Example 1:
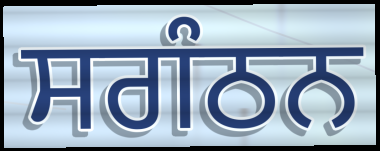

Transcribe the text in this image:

ਸਗੰਠਨ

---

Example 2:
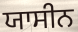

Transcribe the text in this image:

ਯਾਸੀਨ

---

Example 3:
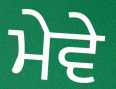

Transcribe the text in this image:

ਮੇਵੇ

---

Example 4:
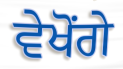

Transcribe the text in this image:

ਵੇਖੋਂਗੇ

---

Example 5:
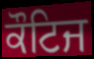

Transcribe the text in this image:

ਕੌਟਿਜ